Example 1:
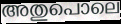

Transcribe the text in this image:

അതുപൊലെ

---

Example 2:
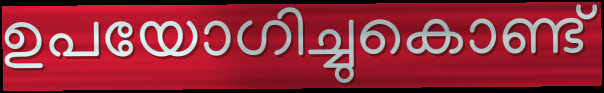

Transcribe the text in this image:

ഉപയോഗിച്ചുകൊണ്ട്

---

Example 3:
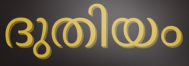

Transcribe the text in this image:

ദുതിയം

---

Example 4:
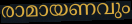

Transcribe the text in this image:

രാമായണവും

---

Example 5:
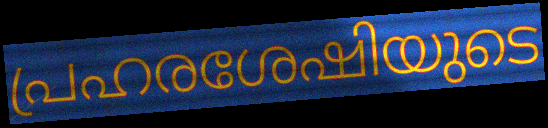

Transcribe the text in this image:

പ്രഹരശേഷിയുടെ